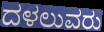
ದಳಲುವರು